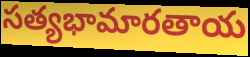
సత్యభామారతాయ